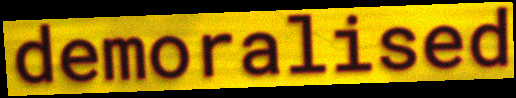
demoralised